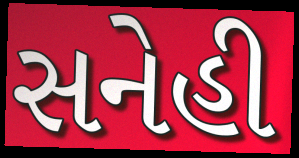
સનેહી